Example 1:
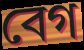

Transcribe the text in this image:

বেগ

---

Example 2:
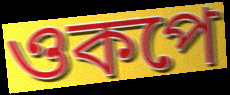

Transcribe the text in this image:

ওকপে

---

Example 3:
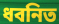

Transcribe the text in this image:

ধবনিত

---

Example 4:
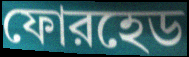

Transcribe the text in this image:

ফোরহেড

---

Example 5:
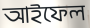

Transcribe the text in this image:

আইফেল